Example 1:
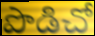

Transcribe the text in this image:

పొడిచో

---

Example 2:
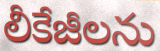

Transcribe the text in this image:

లీకేజీలను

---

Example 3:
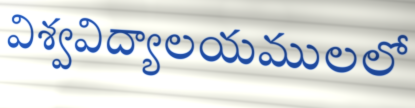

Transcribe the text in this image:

విశ్వవిద్యాలయములలో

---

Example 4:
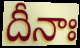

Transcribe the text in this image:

దీనాః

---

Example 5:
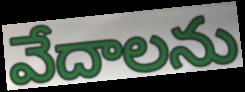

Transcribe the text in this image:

వేదాలను